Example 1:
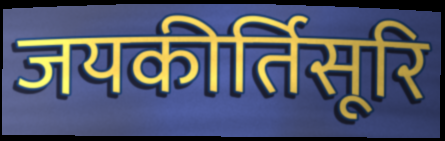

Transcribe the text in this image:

जयकीर्तिसूरि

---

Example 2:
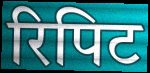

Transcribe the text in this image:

रिपिट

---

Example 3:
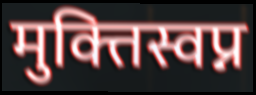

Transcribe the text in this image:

मुक्तिस्वप्न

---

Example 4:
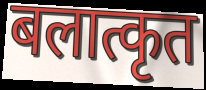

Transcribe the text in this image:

बलात्कृत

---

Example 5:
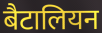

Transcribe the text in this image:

बैटालियन